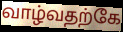
வாழ்வதற்கே